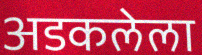
अडकलेला